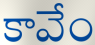
కావేం